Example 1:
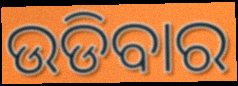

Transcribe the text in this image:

ଉଡିବାର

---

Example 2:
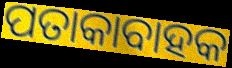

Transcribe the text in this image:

ପତାକାବାହକ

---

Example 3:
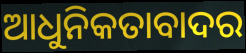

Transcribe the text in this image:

ଆଧୁନିକତାବାଦର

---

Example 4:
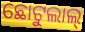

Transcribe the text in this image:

ଛୋଟୁଲାଲ୍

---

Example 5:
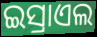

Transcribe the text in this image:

ଇସ୍ରାଏଲ